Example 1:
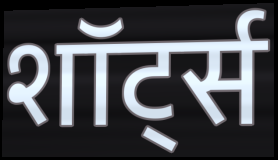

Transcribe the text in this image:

शॉर्ट्स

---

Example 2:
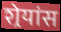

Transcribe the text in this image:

श्रेयांस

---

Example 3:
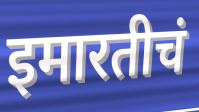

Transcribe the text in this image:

इमारतीचं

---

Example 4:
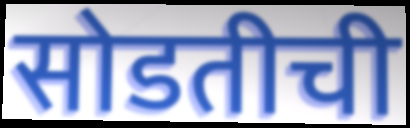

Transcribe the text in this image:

सोडतीची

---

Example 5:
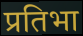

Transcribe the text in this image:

प्रतिभा